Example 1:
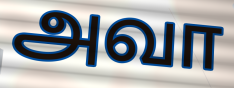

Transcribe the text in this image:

அவா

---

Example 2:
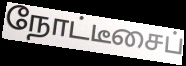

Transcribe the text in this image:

நோட்டீசைப்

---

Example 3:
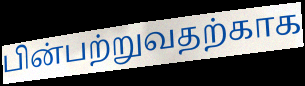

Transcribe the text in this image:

பின்பற்றுவதற்காக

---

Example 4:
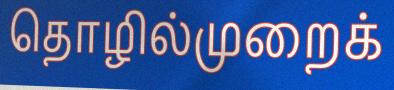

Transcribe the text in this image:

தொழில்முறைக்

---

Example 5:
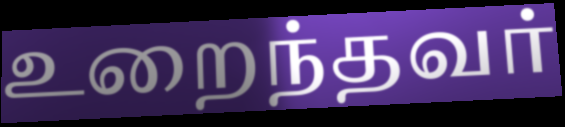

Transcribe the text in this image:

உறைந்தவர்